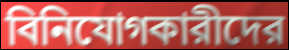
বিনিযোগকারীদের